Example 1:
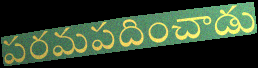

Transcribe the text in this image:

పరమపదించాడు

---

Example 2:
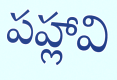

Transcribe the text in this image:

పహ్లావి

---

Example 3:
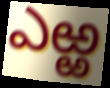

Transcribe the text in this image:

ఎఱ్ఱ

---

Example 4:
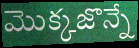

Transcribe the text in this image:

మొక్కజొన్నే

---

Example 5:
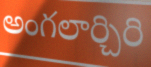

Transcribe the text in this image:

అంగలార్చిరి